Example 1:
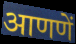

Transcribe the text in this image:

आणणें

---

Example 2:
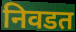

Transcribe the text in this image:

निवडत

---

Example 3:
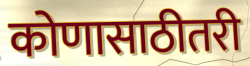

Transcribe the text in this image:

कोणासाठीतरी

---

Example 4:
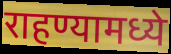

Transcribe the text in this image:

राहण्यामध्ये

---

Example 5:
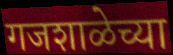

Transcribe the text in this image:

गजशाळेच्या